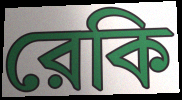
রেকি